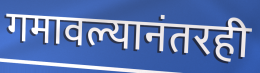
गमावल्यानंतरही